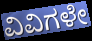
ವಿವಿಗಳೇ